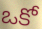
ఒకో